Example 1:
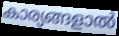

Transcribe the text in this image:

കാര്യങ്ങളാൽ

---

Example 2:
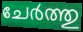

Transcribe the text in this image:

ചേർത്തു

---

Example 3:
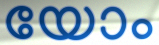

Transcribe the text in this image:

യോം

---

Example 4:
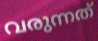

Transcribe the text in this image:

വരുന്നത്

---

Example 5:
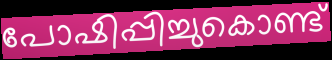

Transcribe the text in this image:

പോഷിപ്പിച്ചുകൊണ്ട്